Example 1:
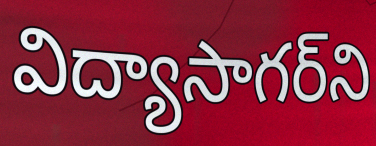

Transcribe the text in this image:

విద్యాసాగర్‌ని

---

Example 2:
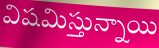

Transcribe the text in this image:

విషమిస్తున్నాయి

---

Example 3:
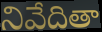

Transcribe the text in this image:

నివేదితా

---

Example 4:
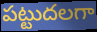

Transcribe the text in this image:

పట్టుదలగా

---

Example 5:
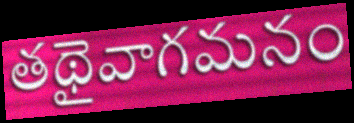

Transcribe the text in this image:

తథైవాగమనం